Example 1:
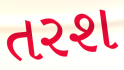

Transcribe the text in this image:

તરશ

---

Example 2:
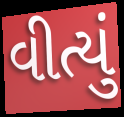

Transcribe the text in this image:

વીત્યું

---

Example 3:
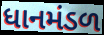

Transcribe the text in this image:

ધાનમંડળ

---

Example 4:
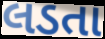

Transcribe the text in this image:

લડતા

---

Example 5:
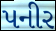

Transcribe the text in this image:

પનીર